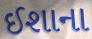
ઈશાના